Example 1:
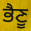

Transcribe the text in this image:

ਭੈਣੂ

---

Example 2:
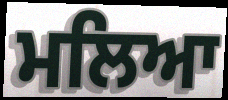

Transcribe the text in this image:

ਮਲਿਆ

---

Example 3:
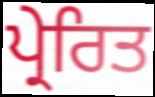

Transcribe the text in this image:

ਪ੍ਰੇਰਿਤ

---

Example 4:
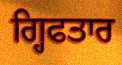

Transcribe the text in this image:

ਗ੍ਹਿਫਤਾਰ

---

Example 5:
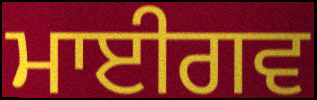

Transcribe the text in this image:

ਮਾਈਗਵ